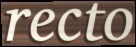
recto